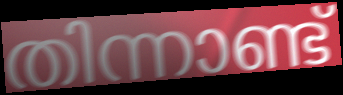
തിന്നാണ്ട്